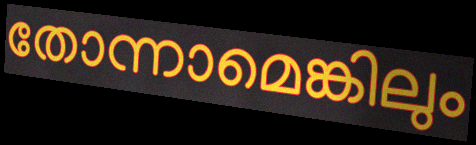
തോന്നാമെങ്കിലും